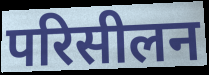
परिसीलन